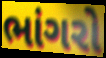
ભાંગરો